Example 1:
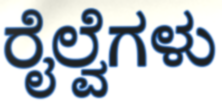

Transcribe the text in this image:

ರೈಲ್ವೆಗಳು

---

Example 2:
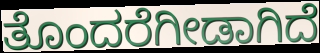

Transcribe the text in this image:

ತೊಂದರೆಗೀಡಾಗಿದೆ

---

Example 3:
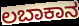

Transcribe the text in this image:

ಲಬಾಕಾನ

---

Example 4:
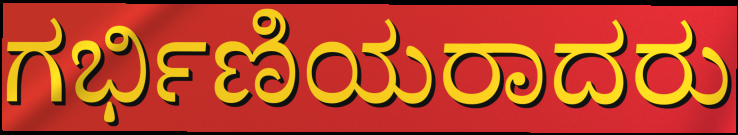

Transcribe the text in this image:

ಗರ್ಭಿಣಿಯರಾದರು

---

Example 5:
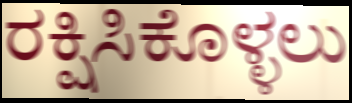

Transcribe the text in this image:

ರಕ್ಷಿಸಿಕೊಳ್ಳಲು